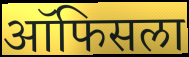
ऑफिसला